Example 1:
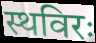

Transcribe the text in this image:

स्थविरः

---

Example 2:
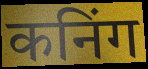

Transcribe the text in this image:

कनिंग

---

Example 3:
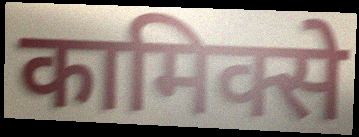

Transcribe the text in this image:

कामिक्से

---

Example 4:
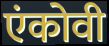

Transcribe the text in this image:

एंकोवी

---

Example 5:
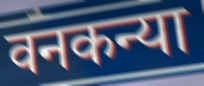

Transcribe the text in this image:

वनकन्या